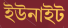
ইউনাইট